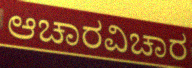
ಆಚಾರವಿಚಾರ